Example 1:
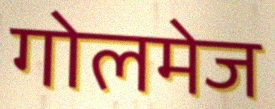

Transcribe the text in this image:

गोलमेज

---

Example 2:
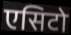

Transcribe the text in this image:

एसिटो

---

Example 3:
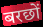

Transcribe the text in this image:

बरछों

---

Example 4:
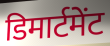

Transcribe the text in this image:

डिमार्टमेंट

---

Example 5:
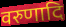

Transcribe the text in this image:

वरुणादि